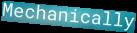
Mechanically